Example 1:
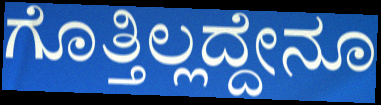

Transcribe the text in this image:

ಗೊತ್ತಿಲ್ಲದ್ದೇನೂ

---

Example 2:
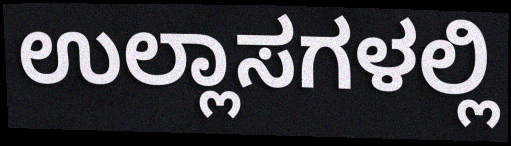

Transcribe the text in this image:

ಉಲ್ಲಾಸಗಳಲ್ಲಿ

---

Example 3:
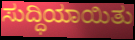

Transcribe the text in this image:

ಸುದ್ಧಿಯಾಯಿತು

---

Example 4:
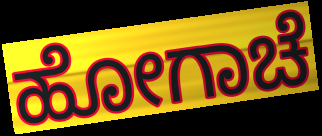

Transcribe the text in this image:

ಹೋಗಾಚೆ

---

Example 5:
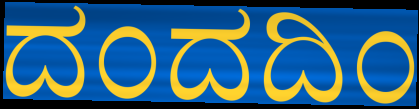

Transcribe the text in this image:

ದಂದದಿಂ